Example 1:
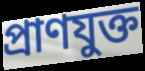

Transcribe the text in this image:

প্রাণযুক্ত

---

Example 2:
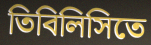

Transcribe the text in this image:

তিবিলিসিতে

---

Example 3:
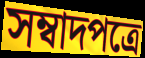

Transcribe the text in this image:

সম্বাদপত্রে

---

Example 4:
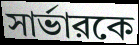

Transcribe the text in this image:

সার্ভারকে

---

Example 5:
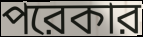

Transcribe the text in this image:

পরেকার